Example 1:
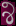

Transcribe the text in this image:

శి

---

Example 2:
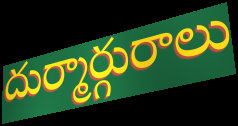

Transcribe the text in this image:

దుర్మార్గురాలు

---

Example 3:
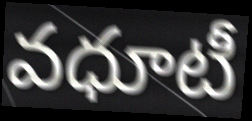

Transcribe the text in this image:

వధూటీ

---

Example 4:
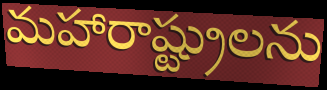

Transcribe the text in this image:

మహారాష్ట్రులను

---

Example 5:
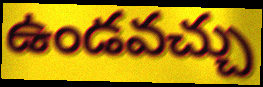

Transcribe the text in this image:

ఉండవచ్చు